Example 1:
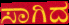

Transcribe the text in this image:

ಸಾಗಿದ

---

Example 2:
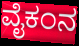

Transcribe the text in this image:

ವೈಕಂನ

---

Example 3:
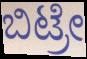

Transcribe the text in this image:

ಬಿಟ್ರೇ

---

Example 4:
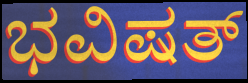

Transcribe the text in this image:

ಭವಿಷತ್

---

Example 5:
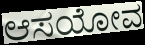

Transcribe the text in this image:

ಆಸಯೋವ